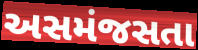
અસમંજસતા